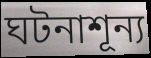
ঘটনাশূন্য